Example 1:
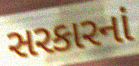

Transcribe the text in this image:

સરકારનાં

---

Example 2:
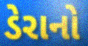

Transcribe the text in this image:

ડેરાનો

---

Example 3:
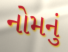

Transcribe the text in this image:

નોમનું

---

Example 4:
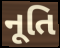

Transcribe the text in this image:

નૂતિ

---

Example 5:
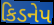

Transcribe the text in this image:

કિડનેપ